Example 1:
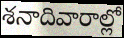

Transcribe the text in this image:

శనాదివారాల్లో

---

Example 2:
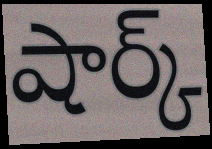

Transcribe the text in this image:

షార్క్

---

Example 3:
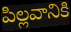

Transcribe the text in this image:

పిల్లవానికి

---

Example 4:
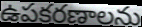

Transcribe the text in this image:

ఉపకరణాలను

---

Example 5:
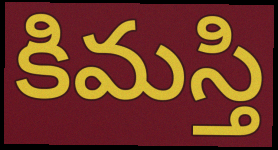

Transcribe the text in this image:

కిమస్తి